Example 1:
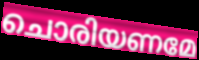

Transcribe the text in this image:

ചൊരിയണമേ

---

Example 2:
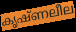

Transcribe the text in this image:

കൃഷ്ണലീല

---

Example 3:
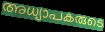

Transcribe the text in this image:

അധ്യാപകരുടെ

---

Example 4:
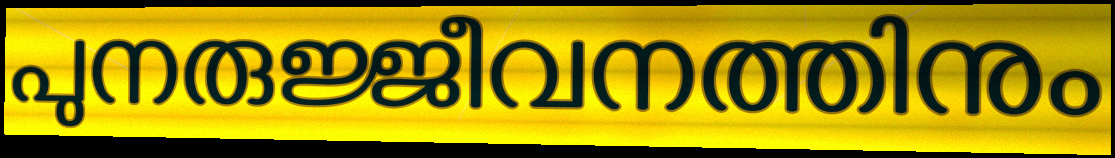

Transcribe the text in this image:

പുനരുജ്ജീവനത്തിനും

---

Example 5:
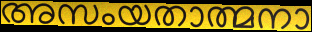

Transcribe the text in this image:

അസംയതാത്മനാ